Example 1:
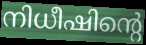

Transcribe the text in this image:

നിധീഷിന്റെ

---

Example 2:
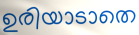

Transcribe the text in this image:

ഉരിയാടാതെ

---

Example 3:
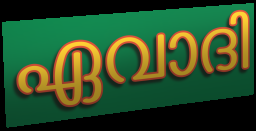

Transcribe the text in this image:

ഏവാദി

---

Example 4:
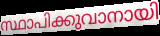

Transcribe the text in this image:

സ്ഥാപിക്കുവാനായി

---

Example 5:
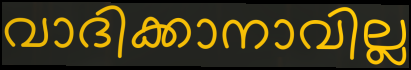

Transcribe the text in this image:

വാദിക്കാനാവില്ല